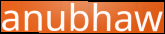
anubhaw